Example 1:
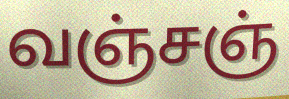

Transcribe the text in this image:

வஞ்சஞ்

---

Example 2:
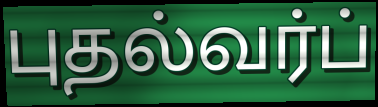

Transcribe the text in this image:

புதல்வர்ப்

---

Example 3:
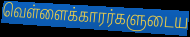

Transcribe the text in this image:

வெள்ளைக்காரர்களுடைய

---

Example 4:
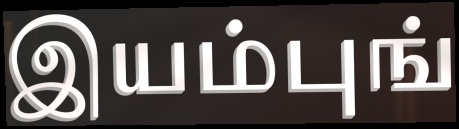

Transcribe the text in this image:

இயம்புங்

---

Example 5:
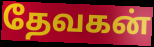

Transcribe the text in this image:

தேவகன்